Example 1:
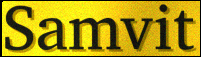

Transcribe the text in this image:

Samvit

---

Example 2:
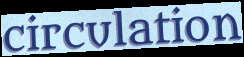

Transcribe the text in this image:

circulation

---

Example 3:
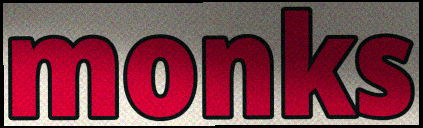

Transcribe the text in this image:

monks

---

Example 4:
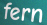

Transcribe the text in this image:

fern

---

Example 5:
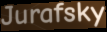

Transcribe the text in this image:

Jurafsky